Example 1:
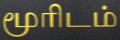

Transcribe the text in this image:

மூரிடம்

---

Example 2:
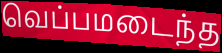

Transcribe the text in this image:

வெப்பமடைந்த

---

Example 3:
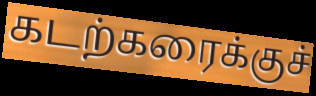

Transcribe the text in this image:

கடற்கரைக்குச்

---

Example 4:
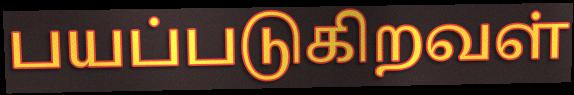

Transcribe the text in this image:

பயப்படுகிறவள்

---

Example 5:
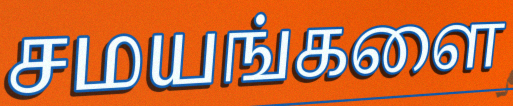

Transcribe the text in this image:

சமயங்களை